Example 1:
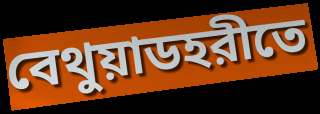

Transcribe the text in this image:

বেথুয়াডহরীতে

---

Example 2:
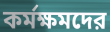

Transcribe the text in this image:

কর্মক্ষমদের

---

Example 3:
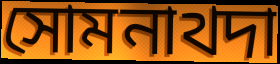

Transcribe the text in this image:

সোমনাথদা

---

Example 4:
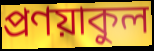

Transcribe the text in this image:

প্রণয়াকুল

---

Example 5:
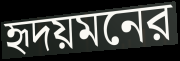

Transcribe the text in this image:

হৃদয়মনের